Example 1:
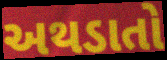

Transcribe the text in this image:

અથડાતો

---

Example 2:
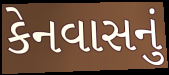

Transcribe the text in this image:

કેનવાસનું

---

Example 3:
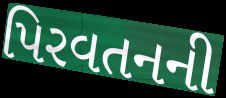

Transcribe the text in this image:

પિરવતનની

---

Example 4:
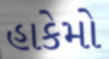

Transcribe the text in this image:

હાકેમો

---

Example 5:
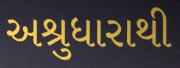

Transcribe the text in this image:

અશ્રુધારાથી